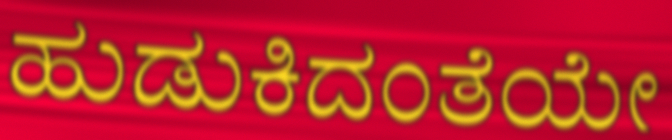
ಹುಡುಕಿದಂತೆಯೇ